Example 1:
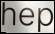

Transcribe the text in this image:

hep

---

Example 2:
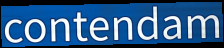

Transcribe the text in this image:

contendam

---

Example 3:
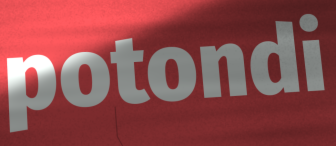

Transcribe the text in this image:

potondi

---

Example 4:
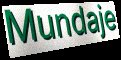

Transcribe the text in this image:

Mundaje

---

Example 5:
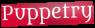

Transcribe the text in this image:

Puppetry